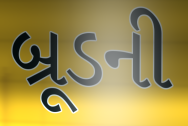
બ્રૂડની